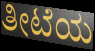
ತೀಟೆಯ